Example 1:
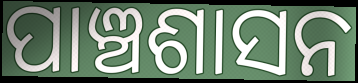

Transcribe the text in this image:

ପାଞ୍ଚଶାସନ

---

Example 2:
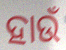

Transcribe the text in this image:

ହାଉଁ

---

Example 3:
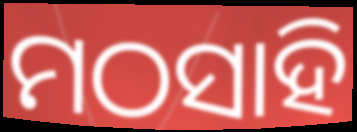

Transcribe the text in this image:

ମଠସାହି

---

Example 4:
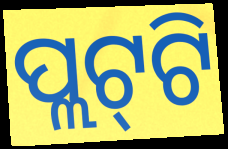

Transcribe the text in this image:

ପ୍ଲଟ୍‌ଟି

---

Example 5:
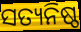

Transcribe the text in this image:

ସତ୍ୟନିଷ୍ଠ